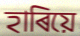
হাৰিয়ে